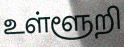
உள்ளூறி